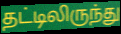
தட்டிலிருந்து